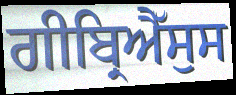
ਗੀਬ੍ਰਿਐੱਸੁਸ